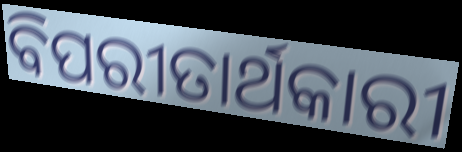
ବିପରୀତାର୍ଥକାରୀ